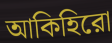
আকিহিরো